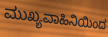
ಮುಖ್ಯವಾಹಿನಿಯಿಂದ